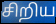
சிறிய